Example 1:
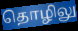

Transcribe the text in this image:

தொழிலு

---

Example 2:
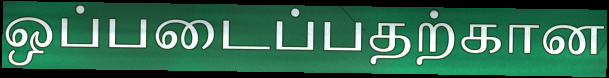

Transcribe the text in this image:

ஒப்படைப்பதற்கான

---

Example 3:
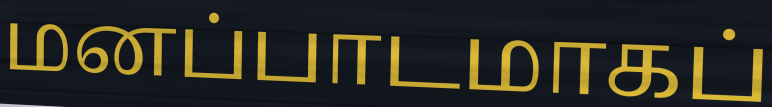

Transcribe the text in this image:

மனப்பாடமாகப்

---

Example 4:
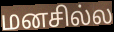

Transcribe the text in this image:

மனசில்ல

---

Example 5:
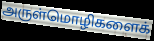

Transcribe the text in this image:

அருள்மொழிகளைக்